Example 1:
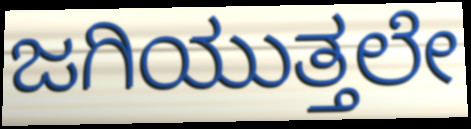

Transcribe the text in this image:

ಜಗಿಯುತ್ತಲೇ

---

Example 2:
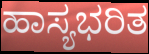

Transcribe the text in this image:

ಹಾಸ್ಯಭರಿತ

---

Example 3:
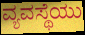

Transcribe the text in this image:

ವ್ಯವಸ್ಥೆಯು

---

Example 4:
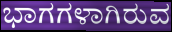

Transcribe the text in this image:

ಭಾಗಗಳಾಗಿರುವ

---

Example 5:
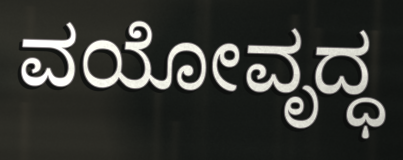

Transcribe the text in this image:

ವಯೋವೃದ್ಧ